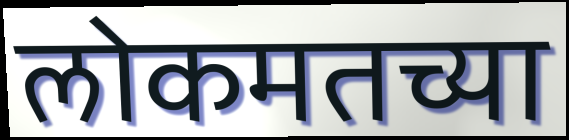
लोकमतच्या